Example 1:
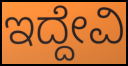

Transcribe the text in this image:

ಇದ್ದೇವಿ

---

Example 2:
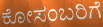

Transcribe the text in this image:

ಕೋಸಂಬರಿಗೆ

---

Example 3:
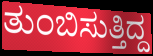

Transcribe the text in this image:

ತುಂಬಿಸುತ್ತಿದ್ದ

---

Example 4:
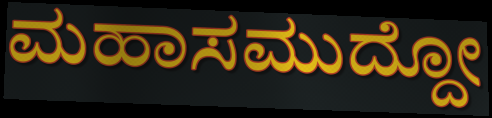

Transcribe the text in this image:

ಮಹಾಸಮುದ್ದೋ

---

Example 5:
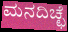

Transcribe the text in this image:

ಮನದಿಚ್ಛೆ